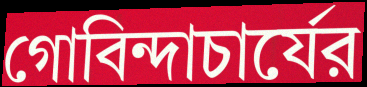
গোবিন্দাচার্যের